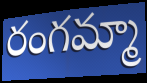
రంగమ్మా